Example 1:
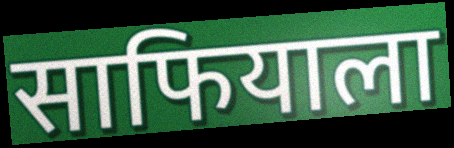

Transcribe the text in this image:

साफियाला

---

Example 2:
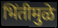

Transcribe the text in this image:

भिंतीमुळे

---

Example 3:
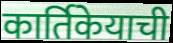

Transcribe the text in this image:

कार्तिकेयाची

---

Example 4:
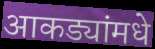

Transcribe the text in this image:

आकड्यांमधे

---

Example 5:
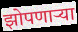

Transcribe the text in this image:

झोपणाऱ्या